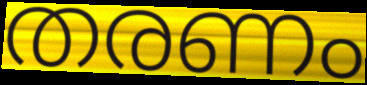
തരണം